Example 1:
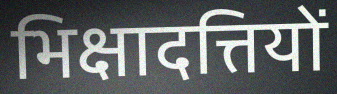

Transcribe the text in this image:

भिक्षादत्तियों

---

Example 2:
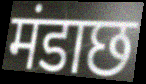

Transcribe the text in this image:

मंडाछ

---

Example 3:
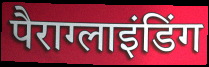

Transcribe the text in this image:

पैराग्लाइंडिंग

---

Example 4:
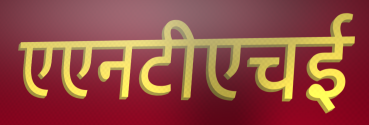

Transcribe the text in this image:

एएनटीएचई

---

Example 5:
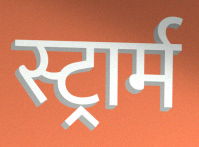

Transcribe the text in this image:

स्ट्रार्म